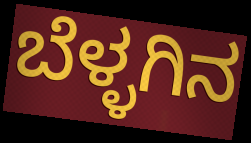
ಬೆಳ್ಳಗಿನ